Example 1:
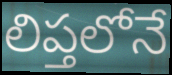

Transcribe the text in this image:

లిప్తలోనే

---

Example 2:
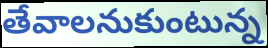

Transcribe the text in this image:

తేవాలనుకుంటున్న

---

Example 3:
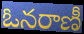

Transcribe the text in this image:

ఓనరాణీ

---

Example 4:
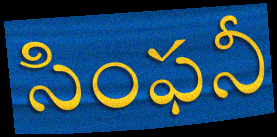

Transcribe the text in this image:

సింఫనీ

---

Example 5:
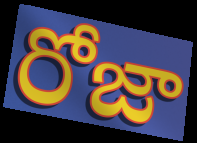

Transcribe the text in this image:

రోజా